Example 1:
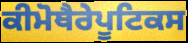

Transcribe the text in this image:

ਕੀਮੋਥੈਰੇਪੂਟਿਕਸ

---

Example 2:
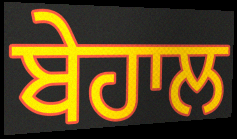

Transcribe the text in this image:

ਬੇਹਾਲ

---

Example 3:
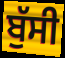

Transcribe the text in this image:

ਬੁੱਸੀ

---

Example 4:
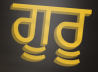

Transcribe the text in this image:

ਗੂਰੂ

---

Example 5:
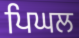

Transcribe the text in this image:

ਪਿਘਲ